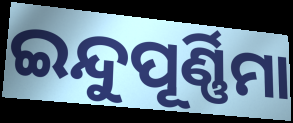
ଇନ୍ଦୁପୂର୍ଣ୍ଣିମା